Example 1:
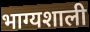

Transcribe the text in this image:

भाग्यशाली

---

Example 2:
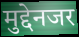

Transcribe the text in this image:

मुद्देनजर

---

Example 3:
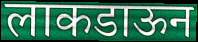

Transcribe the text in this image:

लाकडाऊन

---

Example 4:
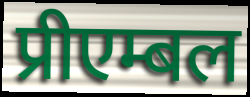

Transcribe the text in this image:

प्रीएम्बल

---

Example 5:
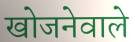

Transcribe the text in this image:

खोजनेवाले